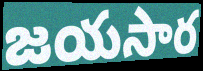
జయసార